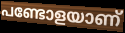
പണ്ടോളയാണ്